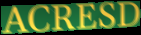
ACRESD